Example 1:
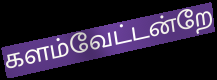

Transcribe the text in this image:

களம்வேட்டன்றே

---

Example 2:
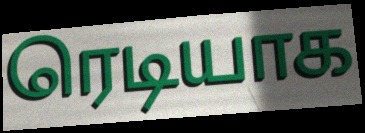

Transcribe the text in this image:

ரெடியாக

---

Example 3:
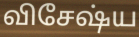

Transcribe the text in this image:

விசேஷ்ய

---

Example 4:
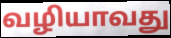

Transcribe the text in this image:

வழியாவது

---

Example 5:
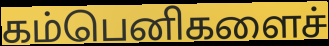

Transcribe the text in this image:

கம்பெனிகளைச்